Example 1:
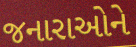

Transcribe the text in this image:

જનારાઓને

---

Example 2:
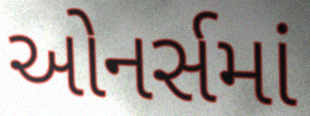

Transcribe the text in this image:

ઓનર્સમાં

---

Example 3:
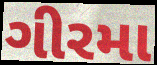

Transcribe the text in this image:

ગીરમા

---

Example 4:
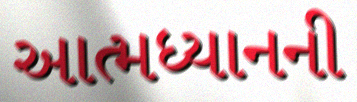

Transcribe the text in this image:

આત્મધ્યાનની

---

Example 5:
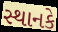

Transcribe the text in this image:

સ્થાનકે